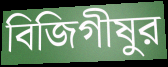
বিজিগীষুর